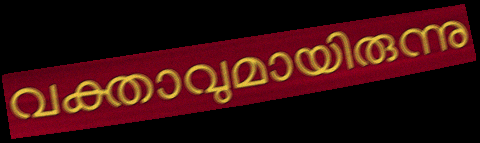
വക്താവുമായിരുന്നു